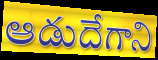
ఆడుదేగాని